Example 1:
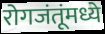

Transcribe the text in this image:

रोगजंतूंमध्ये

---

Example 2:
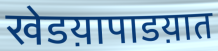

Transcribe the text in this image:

खेडय़ापाडय़ात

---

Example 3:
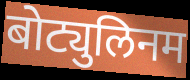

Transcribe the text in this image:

बोट्युलिनम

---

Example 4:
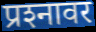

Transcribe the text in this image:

प्रश्‍नावर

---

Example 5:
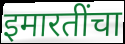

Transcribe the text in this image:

इमारतींचा